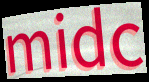
midc